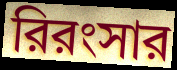
রিরংসার